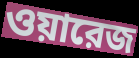
ওয়ারেজ